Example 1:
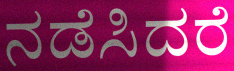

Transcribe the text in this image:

ನಡೆಸಿದರೆ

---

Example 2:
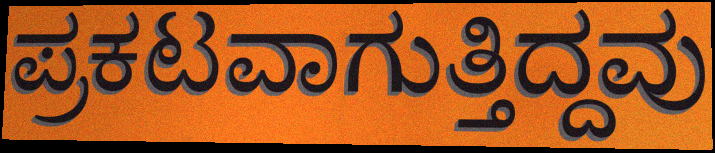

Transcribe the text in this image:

ಪ್ರಕಟವಾಗುತ್ತಿದ್ದವು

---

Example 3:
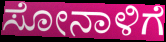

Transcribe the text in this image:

ಸೋನಾಳಿಗೆ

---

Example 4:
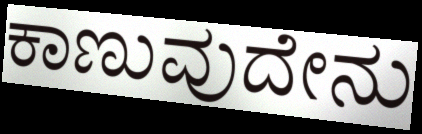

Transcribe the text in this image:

ಕಾಣುವುದೇನು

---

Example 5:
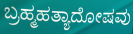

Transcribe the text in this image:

ಬ್ರಹ್ಮಹತ್ಯಾದೋಷವು